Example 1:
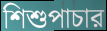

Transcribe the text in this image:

শিশুপাচার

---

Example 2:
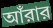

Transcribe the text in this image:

আঁরার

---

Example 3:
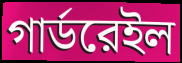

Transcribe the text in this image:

গার্ডরেইল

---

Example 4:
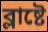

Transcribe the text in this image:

ব্লাষ্টে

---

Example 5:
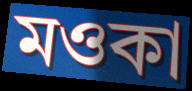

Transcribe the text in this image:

মওকা